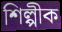
শিল্পীক